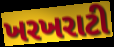
ખરખરાટી